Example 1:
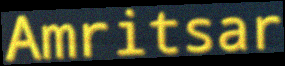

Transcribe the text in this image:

Amritsar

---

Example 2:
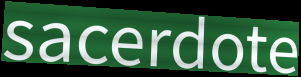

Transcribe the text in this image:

sacerdote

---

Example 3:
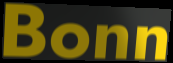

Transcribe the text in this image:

Bonn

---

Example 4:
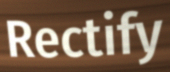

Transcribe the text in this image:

Rectify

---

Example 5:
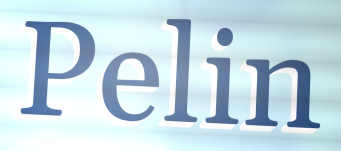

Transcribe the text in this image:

Pelin